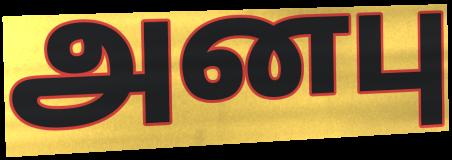
அனபு